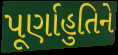
પૂર્ણાહુતિને